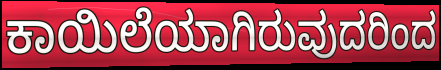
ಕಾಯಿಲೆಯಾಗಿರುವುದರಿಂದ